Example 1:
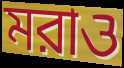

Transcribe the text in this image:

মরাও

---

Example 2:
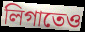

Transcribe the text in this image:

লিগাতেও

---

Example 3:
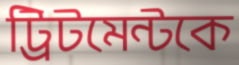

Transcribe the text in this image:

ট্রিটমেন্টকে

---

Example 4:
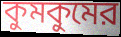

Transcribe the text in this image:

কুমকুমের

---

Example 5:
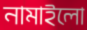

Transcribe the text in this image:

নামাইলো